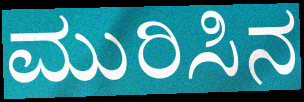
ಮುರಿಸಿನ